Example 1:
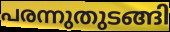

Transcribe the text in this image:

പരന്നുതുടങ്ങി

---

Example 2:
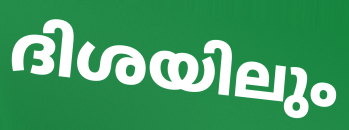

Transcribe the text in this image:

ദിശയിലും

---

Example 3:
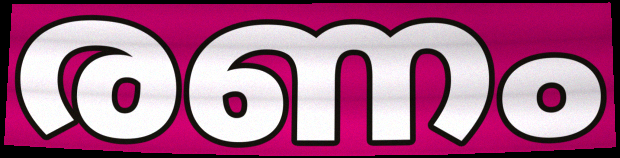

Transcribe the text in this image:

രണം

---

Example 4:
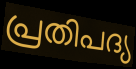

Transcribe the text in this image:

പ്രതിപദ്യ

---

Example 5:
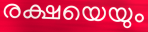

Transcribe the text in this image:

രക്ഷയെയും